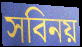
সবিনয়